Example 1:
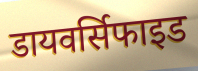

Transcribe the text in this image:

डायवर्सिफाइड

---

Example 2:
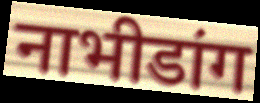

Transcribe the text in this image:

नाभीडांग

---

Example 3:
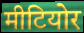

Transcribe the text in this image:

मीटियोर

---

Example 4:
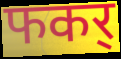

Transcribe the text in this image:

फकर्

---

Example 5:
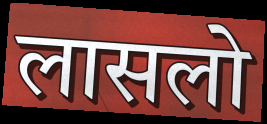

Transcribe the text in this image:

लासलो